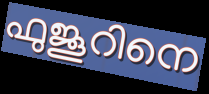
ഫുജൂറിനെ